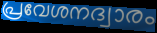
പ്രവേശനദ്വാരം